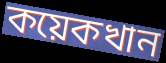
কয়েকখান